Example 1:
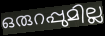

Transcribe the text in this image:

ഒരുറപ്പുമില്ല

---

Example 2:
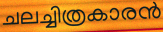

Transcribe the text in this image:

ചലച്ചിത്രകാരൻ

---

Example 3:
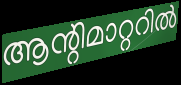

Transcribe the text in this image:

ആന്റിമാറ്ററിൽ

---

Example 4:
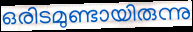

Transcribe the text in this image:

ഒരിടമുണ്ടായിരുന്നു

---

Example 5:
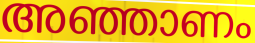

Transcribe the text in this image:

അഞ്ഞാണം